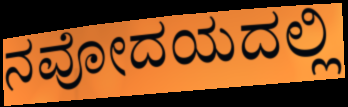
ನವೋದಯದಲ್ಲಿ